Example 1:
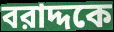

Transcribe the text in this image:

বরাদ্দকে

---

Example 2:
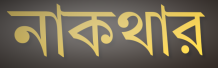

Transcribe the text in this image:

নাকথার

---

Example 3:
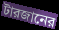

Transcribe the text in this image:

টারজানের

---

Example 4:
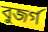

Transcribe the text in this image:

বুজর্গ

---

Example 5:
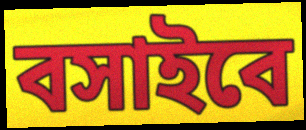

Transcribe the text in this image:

বসাইবে